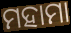
ମହାମା